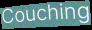
Couching